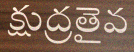
క్షుద్రతైవ